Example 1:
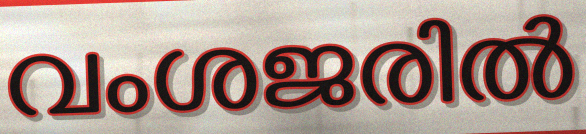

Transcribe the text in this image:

വംശജരിൽ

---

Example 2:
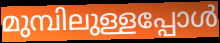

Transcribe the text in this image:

മുമ്പിലുള്ളപ്പോൾ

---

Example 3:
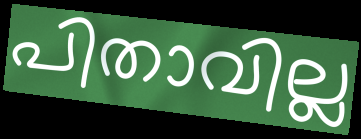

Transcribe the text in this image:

പിതാവില്ല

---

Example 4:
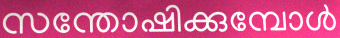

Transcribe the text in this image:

സന്തോഷിക്കുമ്പോൾ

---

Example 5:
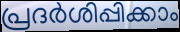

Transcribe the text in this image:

പ്രദർശിപ്പിക്കാം